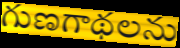
గుణగాథలను